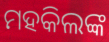
ମହକିଲଙ୍କ